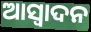
ଆସ୍ଵାଦନ